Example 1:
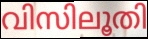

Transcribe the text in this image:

വിസിലൂതി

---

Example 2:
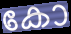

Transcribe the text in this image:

കോ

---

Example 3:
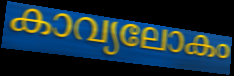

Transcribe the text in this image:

കാവ്യലോകം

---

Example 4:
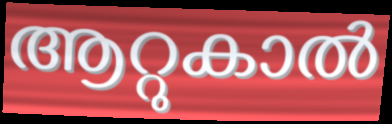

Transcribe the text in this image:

ആറ്റുകാൽ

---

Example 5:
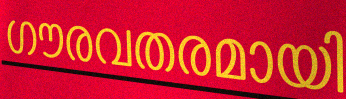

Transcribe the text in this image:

ഗൗരവതരമായി